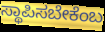
ಸ್ಥಾಪಿಸಬೇಕೆಂಬ